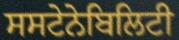
ਸਸਟੇਨੇਬਿਲਿਟੀ